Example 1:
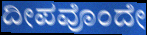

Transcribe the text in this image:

ದೀಪವೊಂದೇ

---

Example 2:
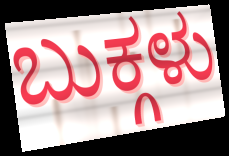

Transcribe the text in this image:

ಬುಕ್ಗಳು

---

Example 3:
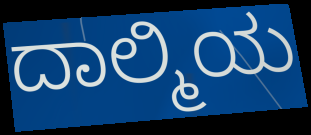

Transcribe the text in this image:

ದಾಲ್ಮಿಯ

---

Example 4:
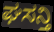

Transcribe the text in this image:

ಘಸನ್ತಿ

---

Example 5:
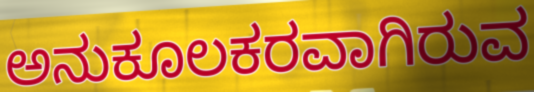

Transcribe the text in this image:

ಅನುಕೂಲಕರವಾಗಿರುವ